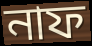
নাফ